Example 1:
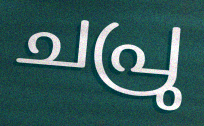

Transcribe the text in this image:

ചപ്രു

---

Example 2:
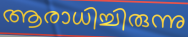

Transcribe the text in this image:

ആരാധിച്ചിരുന്നു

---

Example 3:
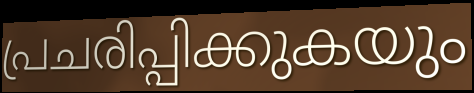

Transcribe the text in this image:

പ്രചരിപ്പിക്കുകയും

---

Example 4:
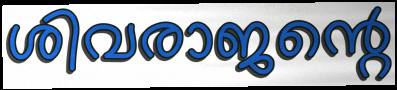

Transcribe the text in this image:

ശിവരാജന്റെ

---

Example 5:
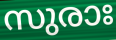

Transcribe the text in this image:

സുരാഃ